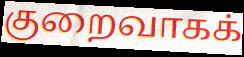
குறைவாகக்